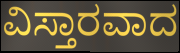
ವಿಸ್ತಾರವಾದ